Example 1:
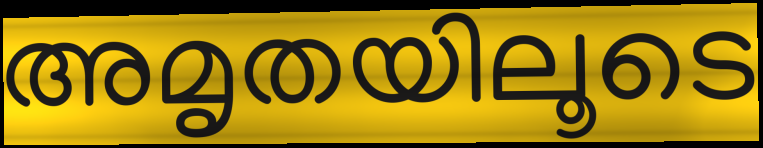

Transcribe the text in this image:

അമൃതയിലൂടെ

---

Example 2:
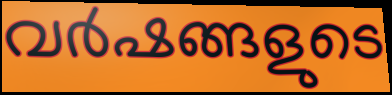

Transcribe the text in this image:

വർഷങ്ങളുടെ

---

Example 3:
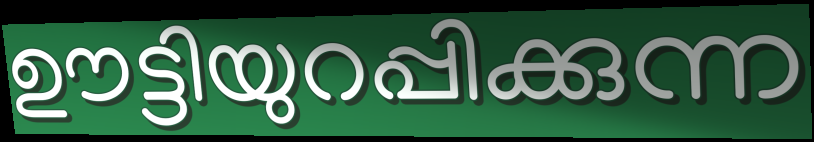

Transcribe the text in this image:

ഊട്ടിയുറപ്പിക്കുന്ന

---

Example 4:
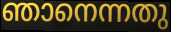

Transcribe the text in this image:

ഞാനെന്നതു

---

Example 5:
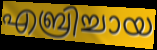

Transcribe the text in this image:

എബ്രിച്ചായ